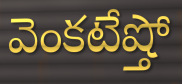
వెంకటేష్తో